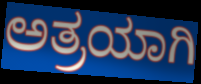
ಅತ್ರಯಾಗಿ